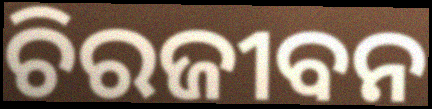
ଚିରଜୀବନ